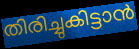
തിരിച്ചുകിട്ടാൻ